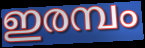
ഇരമ്പം